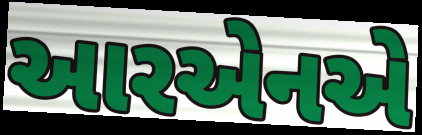
આરએનએ